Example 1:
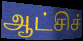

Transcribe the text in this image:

ஆட்சிச்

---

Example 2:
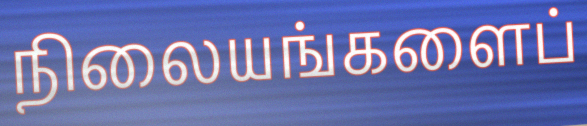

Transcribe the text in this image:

நிலையங்களைப்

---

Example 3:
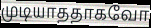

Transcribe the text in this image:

முடியாததாகவோ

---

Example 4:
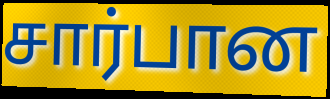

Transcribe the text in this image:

சார்பான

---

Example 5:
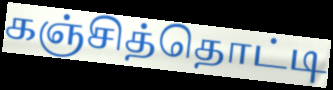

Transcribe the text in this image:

கஞ்சித்தொட்டி